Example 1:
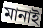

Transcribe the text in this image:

মানাই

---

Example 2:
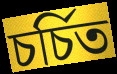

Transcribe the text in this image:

চৰ্চিত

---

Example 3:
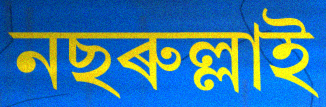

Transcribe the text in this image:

নছৰুল্লাই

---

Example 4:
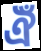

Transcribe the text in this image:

ঐঁ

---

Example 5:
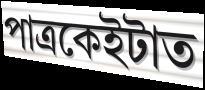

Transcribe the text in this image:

পাত্ৰকেইটাত